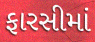
ફારસીમાં